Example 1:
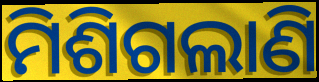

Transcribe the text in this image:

ମିଶିଗଲାଣି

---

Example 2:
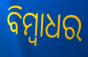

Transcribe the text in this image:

ବିମ୍ବାଧର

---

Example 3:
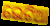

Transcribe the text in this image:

ଭେଟିଆ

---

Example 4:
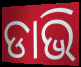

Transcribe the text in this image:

ଡାଭି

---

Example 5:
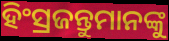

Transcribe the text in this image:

ହିଂସ୍ରଜନ୍ତୁମାନଙ୍କୁ